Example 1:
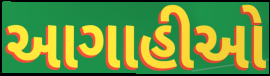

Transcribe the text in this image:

આગાહીઓ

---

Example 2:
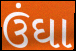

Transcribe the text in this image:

ઉંઘા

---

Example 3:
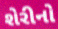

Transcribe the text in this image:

શેરીનો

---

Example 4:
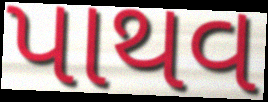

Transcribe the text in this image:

પાથવ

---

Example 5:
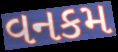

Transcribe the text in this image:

વનકમ